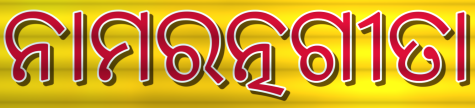
ନାମରତ୍ନଗୀତା